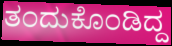
ತಂದುಕೊಂಡಿದ್ದ